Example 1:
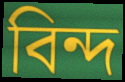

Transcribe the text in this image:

বিন্দ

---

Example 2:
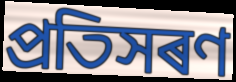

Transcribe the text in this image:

প্ৰতিসৰণ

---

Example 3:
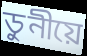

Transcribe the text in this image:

ডুনীয়ে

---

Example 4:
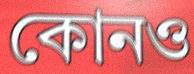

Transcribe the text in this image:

কোনও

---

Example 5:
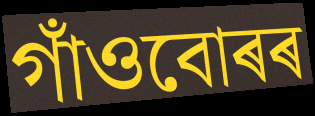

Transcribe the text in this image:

গাঁওবোৰৰ